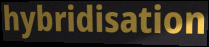
hybridisation